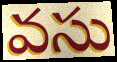
వసు